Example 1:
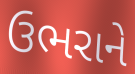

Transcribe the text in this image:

ઉભરાને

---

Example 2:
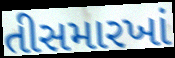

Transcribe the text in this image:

તીસમારખાં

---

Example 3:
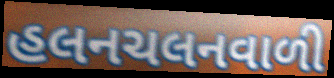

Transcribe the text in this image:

હલનચલનવાળી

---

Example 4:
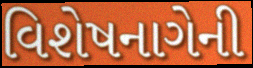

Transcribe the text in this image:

વિશેષનાગેની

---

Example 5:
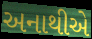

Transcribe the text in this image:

અનાથીએ